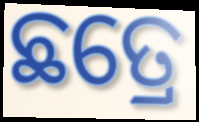
ଛତ୍ରେ